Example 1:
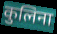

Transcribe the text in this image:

कुलिना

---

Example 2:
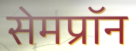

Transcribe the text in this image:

सेमप्रॉन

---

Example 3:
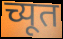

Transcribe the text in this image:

च्यूत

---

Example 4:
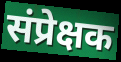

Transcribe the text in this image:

संप्रेक्षक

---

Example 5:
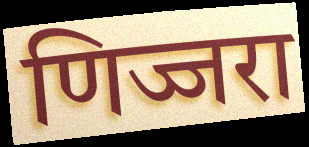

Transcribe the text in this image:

णिज्जरा